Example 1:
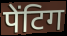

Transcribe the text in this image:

पेंटिग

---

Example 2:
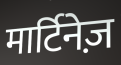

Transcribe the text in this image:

मार्टिनेज़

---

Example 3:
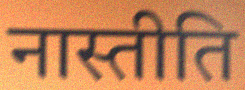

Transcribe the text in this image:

नास्तीति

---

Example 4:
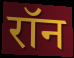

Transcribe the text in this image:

रॉन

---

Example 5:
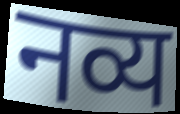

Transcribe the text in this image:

नव्य